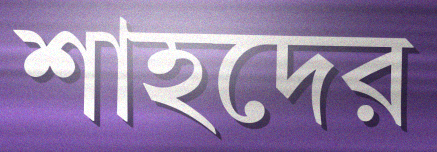
শাহদের